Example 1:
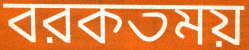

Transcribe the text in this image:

বরকতময়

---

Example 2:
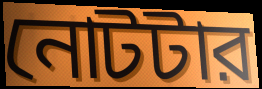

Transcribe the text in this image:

নোটটার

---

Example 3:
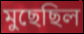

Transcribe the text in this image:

মুছেছিল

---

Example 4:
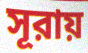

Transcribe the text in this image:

সূরায়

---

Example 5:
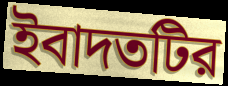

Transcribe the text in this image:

ইবাদতটির